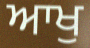
ਆਖੁ